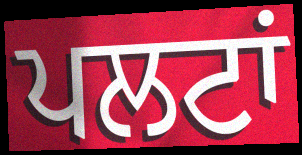
ਪਲਟਾਂ